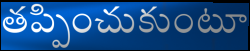
తప్పించుకుంటూ